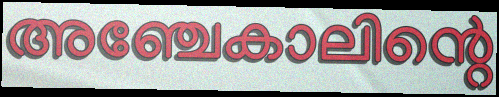
അഞ്ചേകാലിന്റെ